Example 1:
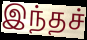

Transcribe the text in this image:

இந்தச்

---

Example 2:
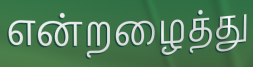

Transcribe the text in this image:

என்றழைத்து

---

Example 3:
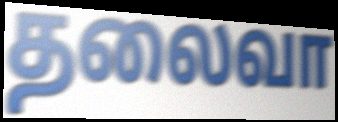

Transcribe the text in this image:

தலைவா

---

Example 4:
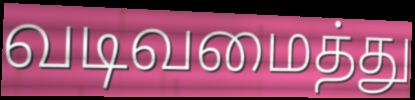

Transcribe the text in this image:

வடிவமைத்து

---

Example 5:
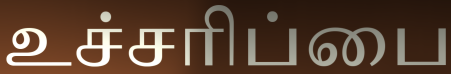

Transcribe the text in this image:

உச்சரிப்பை